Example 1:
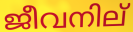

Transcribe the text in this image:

ജീവനില്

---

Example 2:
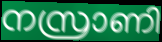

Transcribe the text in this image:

നസ്രാണി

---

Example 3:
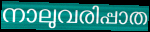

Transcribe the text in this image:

നാലുവരിപ്പാത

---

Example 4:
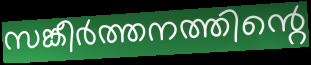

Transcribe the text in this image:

സങ്കീർത്തനത്തിന്റെ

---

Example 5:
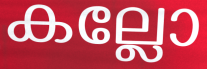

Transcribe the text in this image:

കല്ലോ